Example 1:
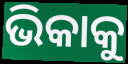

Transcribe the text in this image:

ଭିକାକୁ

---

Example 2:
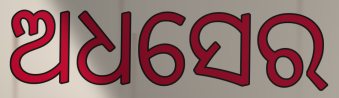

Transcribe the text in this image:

ଅଧସେର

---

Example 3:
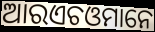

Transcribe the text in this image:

ଆରଏଚଓମାନେ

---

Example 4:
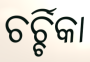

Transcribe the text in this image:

ଚର୍ଚ୍ଚିକା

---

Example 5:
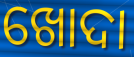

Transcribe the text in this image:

ଖୋଦା